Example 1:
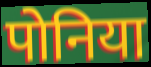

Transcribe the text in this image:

पोनिया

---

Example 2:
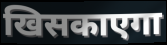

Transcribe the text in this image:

खिसकाएगा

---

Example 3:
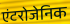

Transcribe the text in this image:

एंटरोजेनिक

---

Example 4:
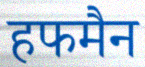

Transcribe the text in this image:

हफमैन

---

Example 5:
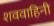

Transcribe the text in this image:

शववाहिनी